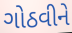
ગોઠવીને